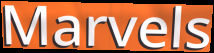
Marvels